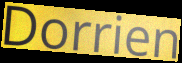
Dorrien